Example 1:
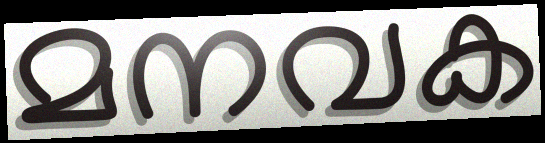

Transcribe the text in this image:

മനവക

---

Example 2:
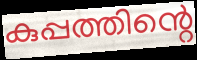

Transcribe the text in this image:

കുപ്പത്തിന്റെ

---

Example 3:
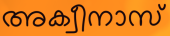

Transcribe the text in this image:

അക്വീനാസ്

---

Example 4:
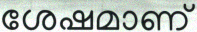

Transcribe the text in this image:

ശേഷമാണ്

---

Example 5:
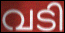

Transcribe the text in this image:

വടി